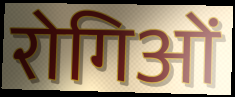
रोगिओं